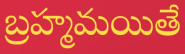
బ్రహ్మమయితే